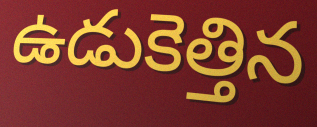
ఉడుకెత్తిన